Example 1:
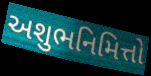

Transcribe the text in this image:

અશુભનિમિત્તો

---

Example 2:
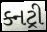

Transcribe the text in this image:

ક્નટ્રી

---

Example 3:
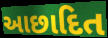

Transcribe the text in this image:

આછાદિત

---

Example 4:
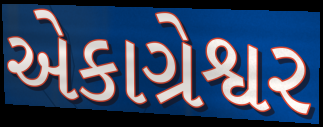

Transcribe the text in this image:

એકાગ્રેશ્વર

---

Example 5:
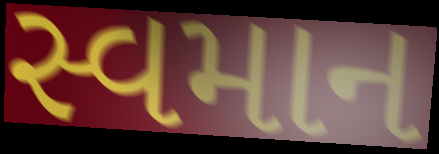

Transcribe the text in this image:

સ્વમાન